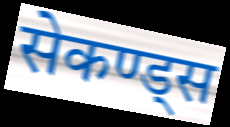
सेकण्ड्स